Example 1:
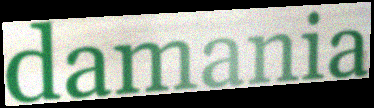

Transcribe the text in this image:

damania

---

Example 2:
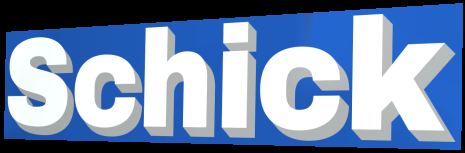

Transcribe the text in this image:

Schick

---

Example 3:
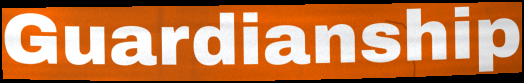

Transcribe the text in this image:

Guardianship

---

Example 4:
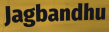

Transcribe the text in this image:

Jagbandhu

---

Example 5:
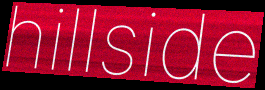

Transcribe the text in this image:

hillside